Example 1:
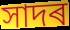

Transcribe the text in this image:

সাদৰ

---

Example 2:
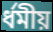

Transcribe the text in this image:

ৰ্ধমীয়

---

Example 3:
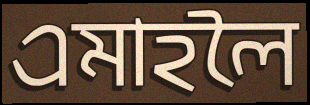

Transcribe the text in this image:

এমাহলৈ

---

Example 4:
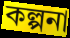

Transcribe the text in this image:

কল্পনা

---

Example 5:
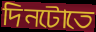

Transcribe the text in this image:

দিনটোতে